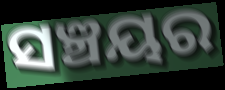
ସଞ୍ଚୟର